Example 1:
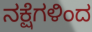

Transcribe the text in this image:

ನಕ್ಷೆಗಳಿಂದ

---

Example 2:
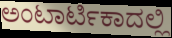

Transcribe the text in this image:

ಅಂಟಾರ್ಟಿಕಾದಲ್ಲಿ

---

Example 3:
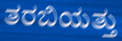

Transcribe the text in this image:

ತರಬಿಯತ್ತು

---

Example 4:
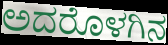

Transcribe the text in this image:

ಅದರೊಳಗಿನ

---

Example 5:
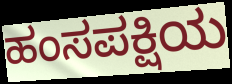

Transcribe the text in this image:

ಹಂಸಪಕ್ಷಿಯ